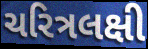
ચરિત્રલક્ષી